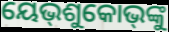
ୟେଭ୍‌ଶୁକୋଭ୍‌ଙ୍କୁ